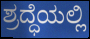
ಶ್ರದ್ಧೆಯಲ್ಲಿ